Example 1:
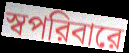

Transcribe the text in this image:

স্বপরিবারে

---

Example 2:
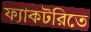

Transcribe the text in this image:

ফ্যাকটরিতে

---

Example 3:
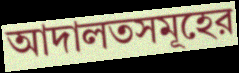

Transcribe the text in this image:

আদালতসমূহের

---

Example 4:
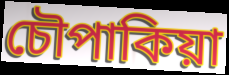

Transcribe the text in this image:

চৌপাকিয়া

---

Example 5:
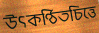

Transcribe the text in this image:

উৎকণ্ঠিতচিত্তে